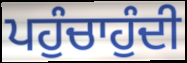
ਪਹੁੰਚਾਹੁੰਦੀ